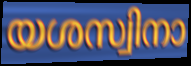
യശസ്വിനാ